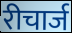
रीचार्ज